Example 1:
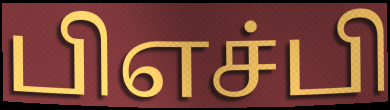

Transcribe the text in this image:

பிஎச்பி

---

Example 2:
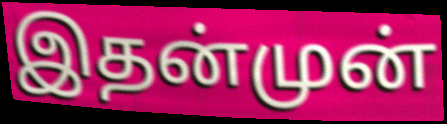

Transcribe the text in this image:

இதன்முன்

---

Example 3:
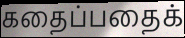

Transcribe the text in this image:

கதைப்பதைக்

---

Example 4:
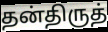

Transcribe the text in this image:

தன்திருத்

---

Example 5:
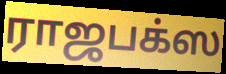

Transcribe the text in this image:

ராஜபக்ஸ